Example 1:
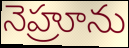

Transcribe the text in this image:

నెహ్రూను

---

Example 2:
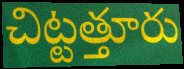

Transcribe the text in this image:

చిట్టత్తూరు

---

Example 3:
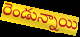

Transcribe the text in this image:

రెండున్నాయి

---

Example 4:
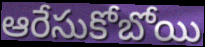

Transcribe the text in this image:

ఆరేసుకోబోయి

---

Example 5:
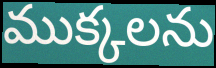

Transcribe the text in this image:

ముక్కలను